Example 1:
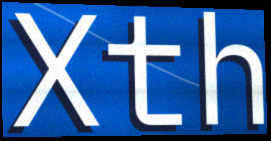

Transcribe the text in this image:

Xth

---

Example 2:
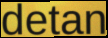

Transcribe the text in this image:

detan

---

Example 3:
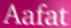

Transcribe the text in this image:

Aafat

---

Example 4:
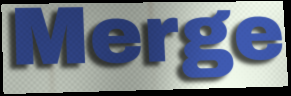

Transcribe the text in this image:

Merge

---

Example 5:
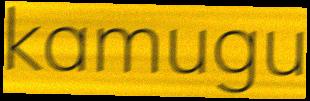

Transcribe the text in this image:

kamugu